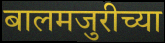
बालमजुरीच्या